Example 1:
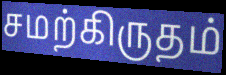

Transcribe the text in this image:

சமற்கிருதம்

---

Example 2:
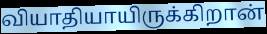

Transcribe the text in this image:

வியாதியாயிருக்கிறான்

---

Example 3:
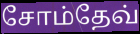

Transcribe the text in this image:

சோம்தேவ்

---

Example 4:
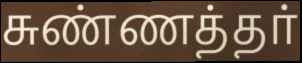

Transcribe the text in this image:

சுண்ணத்தர்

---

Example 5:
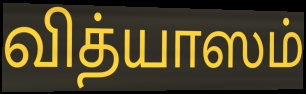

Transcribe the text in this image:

வித்யாஸம்